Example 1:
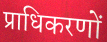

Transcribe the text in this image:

प्राधिकरणों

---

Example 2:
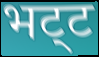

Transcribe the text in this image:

भट्‌ट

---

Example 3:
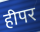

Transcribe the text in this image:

हीपर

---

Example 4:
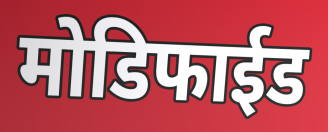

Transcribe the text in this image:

मोडिफाईड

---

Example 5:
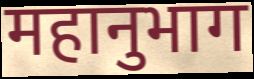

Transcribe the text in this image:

महानुभाग